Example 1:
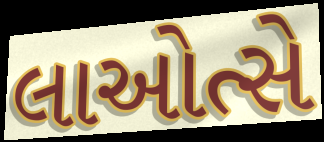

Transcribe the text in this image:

લાઓત્સે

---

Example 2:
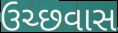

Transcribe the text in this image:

ઉચ્છવાસ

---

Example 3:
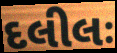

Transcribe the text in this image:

દલીલઃ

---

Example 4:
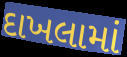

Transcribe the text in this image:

દાખલામાં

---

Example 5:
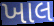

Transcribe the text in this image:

ખાલ